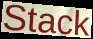
Stack